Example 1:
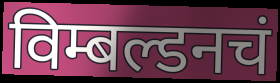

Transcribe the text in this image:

विम्बल्डनचं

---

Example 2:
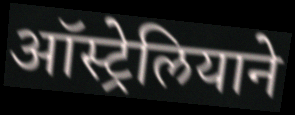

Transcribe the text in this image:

ऑस्ट्रेलियाने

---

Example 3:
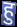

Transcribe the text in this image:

हु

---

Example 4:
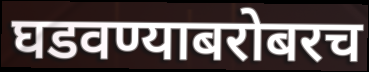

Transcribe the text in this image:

घडवण्याबरोबरच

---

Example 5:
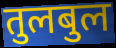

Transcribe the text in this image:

तुलबुल